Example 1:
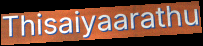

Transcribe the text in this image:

Thisaiyaarathu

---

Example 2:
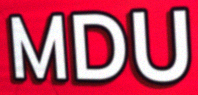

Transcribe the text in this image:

MDU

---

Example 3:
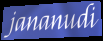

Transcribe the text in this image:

jananudi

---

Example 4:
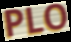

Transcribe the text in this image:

PLO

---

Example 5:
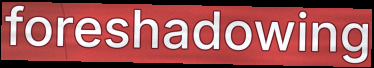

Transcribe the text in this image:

foreshadowing